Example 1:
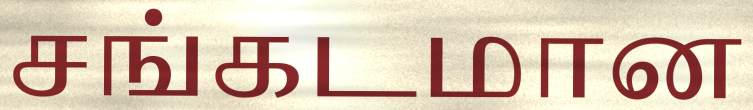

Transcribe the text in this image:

சங்கடமான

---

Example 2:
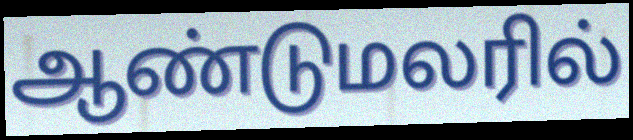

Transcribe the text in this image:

ஆண்டுமலரில்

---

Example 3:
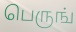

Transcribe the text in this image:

பெருங்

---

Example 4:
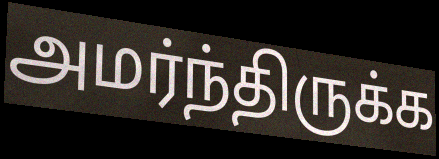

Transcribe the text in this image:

அமர்ந்திருக்க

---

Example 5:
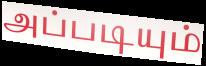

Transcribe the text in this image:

அப்படியும்